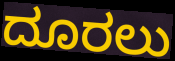
ದೂರಲು